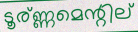
ടൂര്ണ്ണമെന്റില്